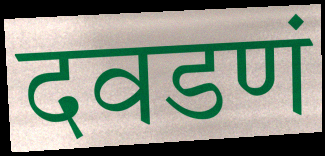
दवडणं